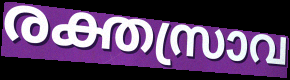
രക്തസ്രാവ